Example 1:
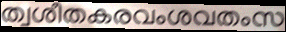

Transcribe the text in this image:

ത്വശീതകരവംശവതംസ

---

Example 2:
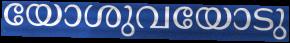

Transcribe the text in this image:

യോശുവയോടു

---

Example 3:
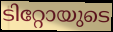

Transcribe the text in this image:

ടിറ്റോയുടെ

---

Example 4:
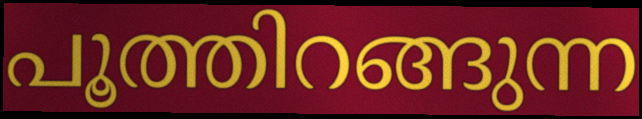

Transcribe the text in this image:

പൂത്തിറങ്ങുന്ന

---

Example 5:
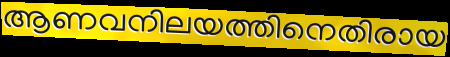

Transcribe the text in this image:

ആണവനിലയത്തിനെതിരായ